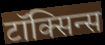
टॉक्सिन्स